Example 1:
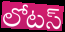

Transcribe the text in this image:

లోటస్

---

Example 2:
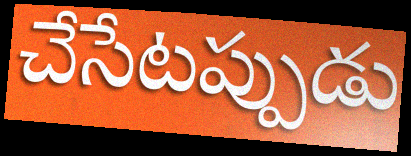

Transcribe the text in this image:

చేసేటప్పుడు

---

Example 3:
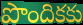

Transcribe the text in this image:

పొందికకు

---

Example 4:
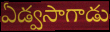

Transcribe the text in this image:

ఏడ్వసాగాడు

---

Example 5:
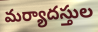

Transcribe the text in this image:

మర్యాదస్తుల